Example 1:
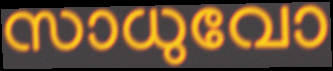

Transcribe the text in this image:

സാധുവോ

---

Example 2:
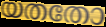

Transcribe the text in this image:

യതതോ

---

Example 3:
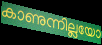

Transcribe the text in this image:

കാണുന്നില്ലയോ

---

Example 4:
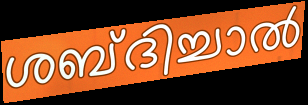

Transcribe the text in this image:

ശബ്ദിച്ചാൽ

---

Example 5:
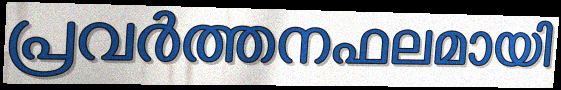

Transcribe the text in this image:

പ്രവർത്തനഫലമായി